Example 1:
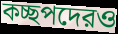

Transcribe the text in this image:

কচ্ছপদেরও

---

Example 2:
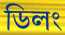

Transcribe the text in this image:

ডিলং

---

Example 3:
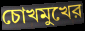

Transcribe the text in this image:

চোখমুখের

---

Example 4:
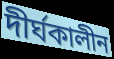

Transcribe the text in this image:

দীর্ঘকালীন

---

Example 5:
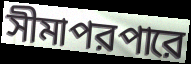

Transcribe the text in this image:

সীমাপরপারে